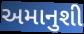
અમાનુશી